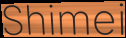
Shimei